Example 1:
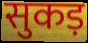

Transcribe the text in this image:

सुकड़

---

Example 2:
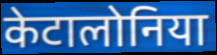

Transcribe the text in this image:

केटालोनिया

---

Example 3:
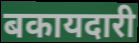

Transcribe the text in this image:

बकायदारी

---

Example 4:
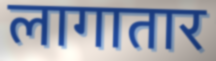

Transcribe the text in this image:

लागातार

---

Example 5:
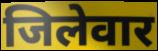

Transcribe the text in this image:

जिलेवार